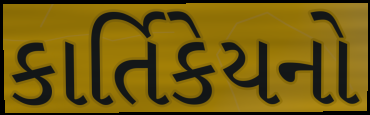
કાર્તિકેયનો